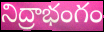
నిద్రాభంగం